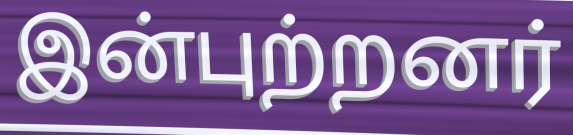
இன்புற்றனர்